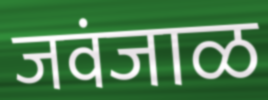
जवंजाळ